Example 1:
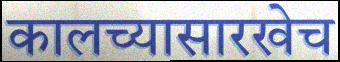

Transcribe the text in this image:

कालच्यासारखेच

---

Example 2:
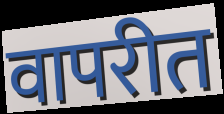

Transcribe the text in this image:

वापरीत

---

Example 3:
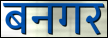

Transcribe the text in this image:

बनगर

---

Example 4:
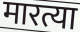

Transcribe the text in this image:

मारत्या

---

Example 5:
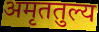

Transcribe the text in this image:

अमृततुल्य